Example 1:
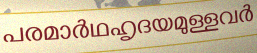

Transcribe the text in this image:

പരമാർഥഹൃദയമുള്ളവർ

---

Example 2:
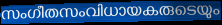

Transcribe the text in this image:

സംഗീതസംവിധായകരുടെയും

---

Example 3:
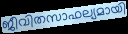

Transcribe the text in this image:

ജീവിതസാഫല്യമായി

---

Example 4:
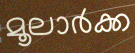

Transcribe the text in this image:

മൂലാർക്ക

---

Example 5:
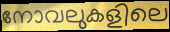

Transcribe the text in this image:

നോവലുകളിലെ